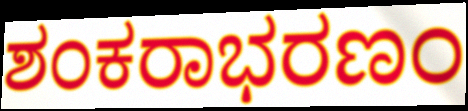
ಶಂಕರಾಭರಣಂ